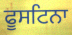
ਫੂਸਟਿਨਾ